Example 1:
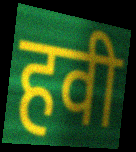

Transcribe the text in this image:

हवी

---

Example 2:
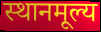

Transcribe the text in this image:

स्थानमूल्य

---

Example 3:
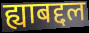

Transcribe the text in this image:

ह्याबद्दल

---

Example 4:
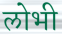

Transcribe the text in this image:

लोभी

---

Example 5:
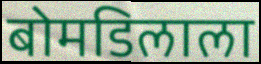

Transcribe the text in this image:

बोमडिलाला